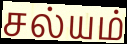
சல்யம்